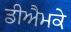
ਡੀਐਮਕੇ